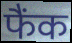
फैंक